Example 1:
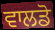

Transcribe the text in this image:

ਵਾਲਡੋ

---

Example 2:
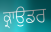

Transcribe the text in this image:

ਕ੍ਰਾਉਡਰ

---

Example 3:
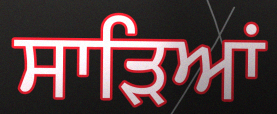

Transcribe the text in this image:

ਸਾੜਿਆਂ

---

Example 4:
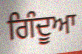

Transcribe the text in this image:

ਗਿੰਦੂਆ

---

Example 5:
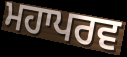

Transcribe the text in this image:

ਮਹਾਪਰਵ